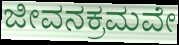
ಜೀವನಕ್ರಮವೇ